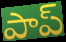
పాప్